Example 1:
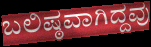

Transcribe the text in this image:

ಬಲಿಷ್ಠವಾಗಿದ್ದವು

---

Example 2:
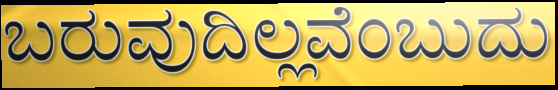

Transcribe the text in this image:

ಬರುವುದಿಲ್ಲವೆಂಬುದು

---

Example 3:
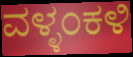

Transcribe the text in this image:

ವಳ್ಳಂಕಳಿ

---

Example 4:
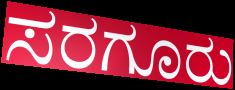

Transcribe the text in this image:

ಸರಗೂರು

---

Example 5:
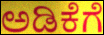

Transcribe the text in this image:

ಅಡಿಕೆಗೆ